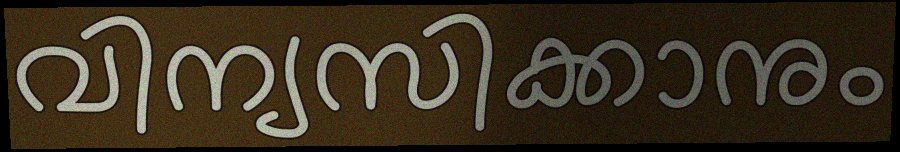
വിന്യസിക്കാനും